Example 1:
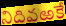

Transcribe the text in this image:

నిదివఱకే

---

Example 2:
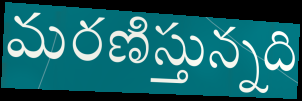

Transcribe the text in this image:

మరణిస్తున్నది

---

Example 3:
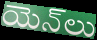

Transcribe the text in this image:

యెన్‌లు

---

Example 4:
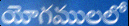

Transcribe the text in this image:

యోగములలో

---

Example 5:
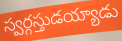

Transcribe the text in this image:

స్వర్గస్తుడయ్యాడు